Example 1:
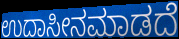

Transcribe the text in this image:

ಉದಾಸೀನಮಾಡದೆ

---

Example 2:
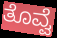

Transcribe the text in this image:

ತೊವ್ವೆ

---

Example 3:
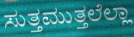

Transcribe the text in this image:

ಸುತ್ತಮುತ್ತಲೆಲ್ಲಾ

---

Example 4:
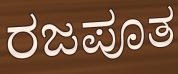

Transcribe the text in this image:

ರಜಪೂತ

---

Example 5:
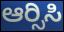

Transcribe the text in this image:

ಆರ್‍ಸಿಸಿ